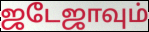
ஜடேஜாவும்